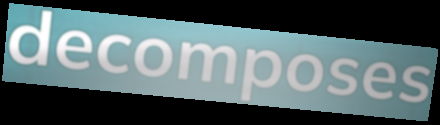
decomposes